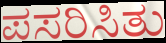
ಪಸರಿಸಿತು